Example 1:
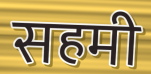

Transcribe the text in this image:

सहमी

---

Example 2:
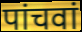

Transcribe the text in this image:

पांचवां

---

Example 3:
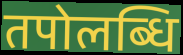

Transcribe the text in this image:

तपोलब्धि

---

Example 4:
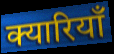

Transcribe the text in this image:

क्यारियाँ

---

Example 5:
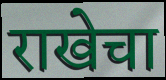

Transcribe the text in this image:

राखेचा